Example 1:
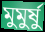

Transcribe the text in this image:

মুমুর্ষু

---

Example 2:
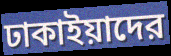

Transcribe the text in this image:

ঢাকাইয়াদের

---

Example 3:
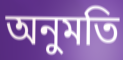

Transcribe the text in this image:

অনুমতি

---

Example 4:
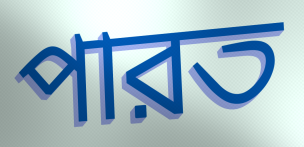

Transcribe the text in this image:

পারত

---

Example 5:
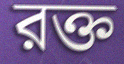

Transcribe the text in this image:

রক্ত